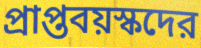
প্রাপ্তবয়স্কদের